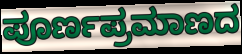
ಪೂರ್ಣಪ್ರಮಾಣದ